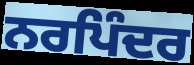
ਨਰਪਿੰਦਰ